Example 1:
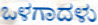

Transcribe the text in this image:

ಒಳಗಾದಳು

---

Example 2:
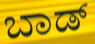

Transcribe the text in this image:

ಬಾಡ್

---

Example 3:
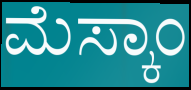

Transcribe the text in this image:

ಮೆಸ್ಕಾಂ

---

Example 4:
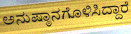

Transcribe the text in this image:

ಅನುಷ್ಠಾನಗೊಳಿಸಿದ್ದಾರೆ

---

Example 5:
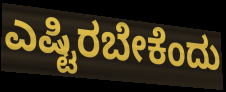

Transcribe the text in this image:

ಎಷ್ಟಿರಬೇಕೆಂದು